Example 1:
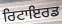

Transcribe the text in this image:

ਰਿਟਾਇਰਡ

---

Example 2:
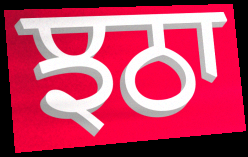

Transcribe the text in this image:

ਝਠਾ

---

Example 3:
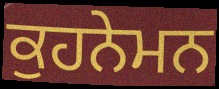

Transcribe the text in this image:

ਕੁਹਨੇਮਨ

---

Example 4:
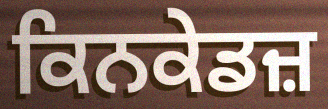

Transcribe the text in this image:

ਕਿਨਕੇਡਜ਼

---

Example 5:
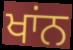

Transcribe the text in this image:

ਖਾਂਨ